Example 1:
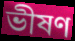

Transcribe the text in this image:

ভীষণ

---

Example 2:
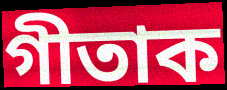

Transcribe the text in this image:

গীতাক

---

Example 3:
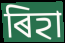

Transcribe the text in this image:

ৰিহা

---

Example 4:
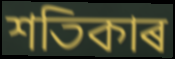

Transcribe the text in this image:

শতিকাৰ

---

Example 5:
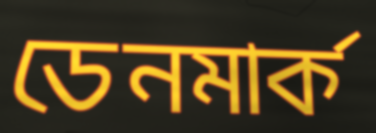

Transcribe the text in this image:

ডেনমাৰ্ক